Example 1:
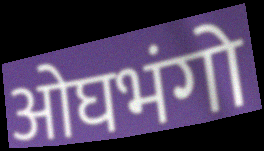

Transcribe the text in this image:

ओघभंगो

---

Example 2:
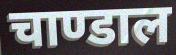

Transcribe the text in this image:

चाण्डाल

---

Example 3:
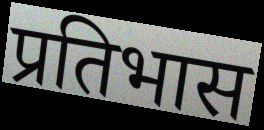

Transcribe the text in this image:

प्रतिभास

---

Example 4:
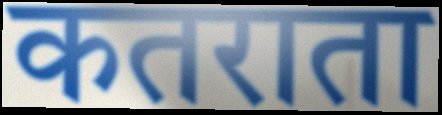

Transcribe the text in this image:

कतराता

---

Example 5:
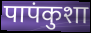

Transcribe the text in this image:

पापंकुशा